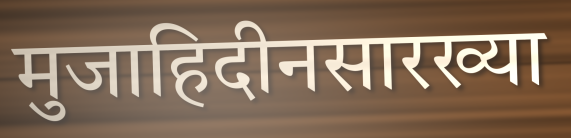
मुजाहिदीनसारख्या